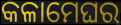
କଳାମେଘର